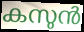
കസുൻ